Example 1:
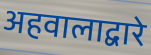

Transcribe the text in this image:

अहवालाद्वारे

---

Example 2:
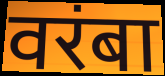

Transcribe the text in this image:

वरंबा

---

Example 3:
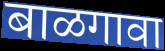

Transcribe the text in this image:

बाळगावा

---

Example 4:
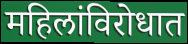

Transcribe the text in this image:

महिलांविरोधात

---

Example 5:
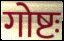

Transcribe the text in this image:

गोष्टः